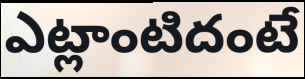
ఎట్లాంటిదంటే